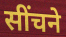
सींचने